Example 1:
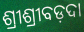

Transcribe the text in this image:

ଶ୍ରୀଶ୍ରୀବଡ଼ଦା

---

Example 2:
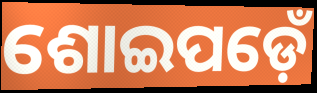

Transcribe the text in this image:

ଶୋଇପଡ଼େଁ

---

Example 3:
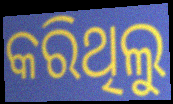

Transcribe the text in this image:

କରିଥିଲୁ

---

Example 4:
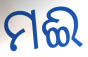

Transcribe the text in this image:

ମଈ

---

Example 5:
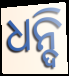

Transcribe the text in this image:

ଧନ୍ଦି